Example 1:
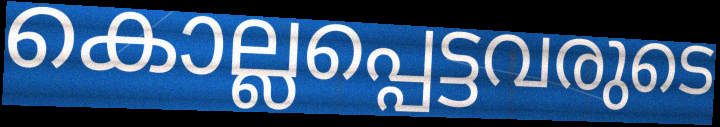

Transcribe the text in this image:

കൊല്ലപ്പെട്ടവരുടെ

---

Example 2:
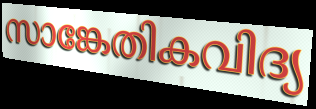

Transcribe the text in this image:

സാങ്കേതികവിദ്യ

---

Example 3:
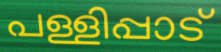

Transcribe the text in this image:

പള്ളിപ്പാട്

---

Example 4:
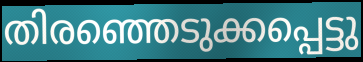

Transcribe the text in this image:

തിരഞ്ഞെടുക്കപ്പെട്ടു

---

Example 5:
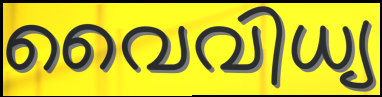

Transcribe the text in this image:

വൈവിധ്യ